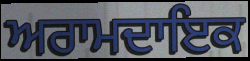
ਅਰਾਮਦਾਇਕ